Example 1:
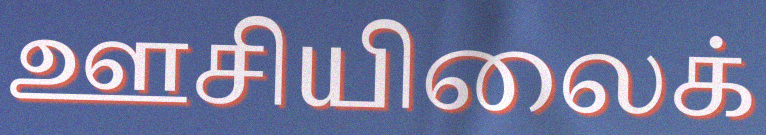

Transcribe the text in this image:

ஊசியிலைக்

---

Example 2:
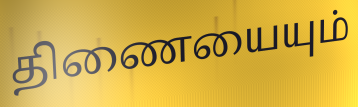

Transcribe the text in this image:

திணையையும்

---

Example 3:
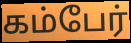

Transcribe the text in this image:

கம்பேர்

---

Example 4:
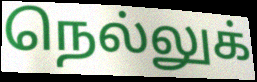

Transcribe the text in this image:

நெல்லுக்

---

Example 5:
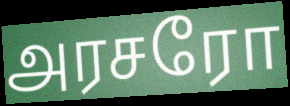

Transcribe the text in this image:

அரசரோ